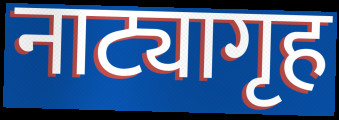
नाट्यागृह